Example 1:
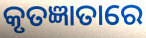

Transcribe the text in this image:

କୃତଜ୍ଞାତାରେ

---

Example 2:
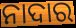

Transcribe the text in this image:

ନାଦାର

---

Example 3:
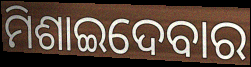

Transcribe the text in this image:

ମିଶାଇଦେବାର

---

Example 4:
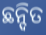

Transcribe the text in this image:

ଛନ୍ଦିତ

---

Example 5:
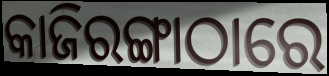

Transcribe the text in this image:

କାଜିରଙ୍ଗାଠାରେ